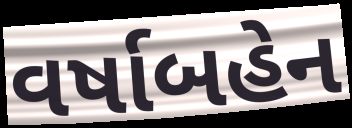
વર્ષાબહેન